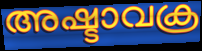
അഷ്ടാവക്ര